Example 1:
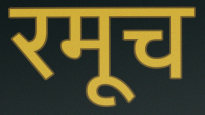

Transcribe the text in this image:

रमूच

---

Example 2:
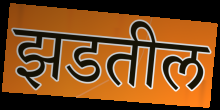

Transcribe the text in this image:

झडतील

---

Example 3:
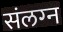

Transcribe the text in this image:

संलग्‍न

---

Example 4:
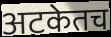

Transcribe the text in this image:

अटकेतच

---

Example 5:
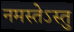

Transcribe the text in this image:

नमस्तेऽस्तु